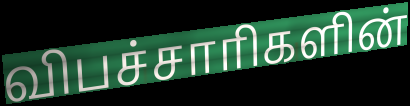
விபச்சாரிகளின்